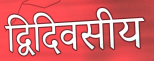
द्विदिवसीय